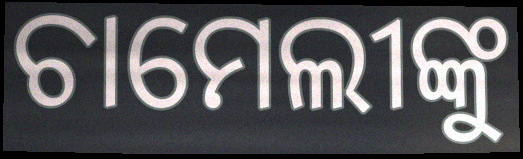
ଚାମେଲୀଙ୍କୁ